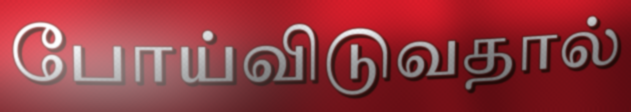
போய்விடுவதால்